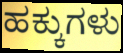
ಹಕ್ಕುಗಳು